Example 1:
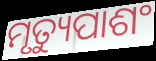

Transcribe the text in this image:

ମୃତ୍ୟୁପାଶଂ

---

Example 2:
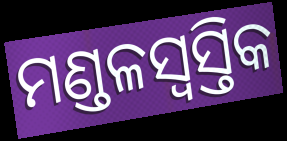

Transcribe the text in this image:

ମଣ୍ଡଳସ୍ୱସ୍ତିକ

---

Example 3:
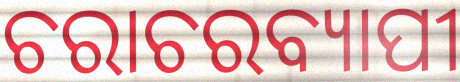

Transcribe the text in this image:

ଚରାଚରବ୍ୟାପୀ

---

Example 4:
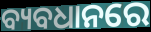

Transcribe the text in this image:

ବ୍ୟବଧାନରେ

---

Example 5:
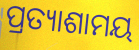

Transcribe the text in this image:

ପ୍ରତ୍ୟାଶାମୟ